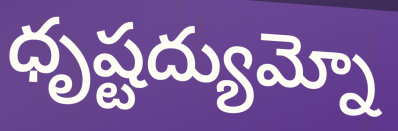
ధృష్టద్యుమ్నో